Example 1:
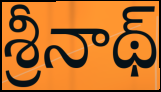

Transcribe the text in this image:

శ్రీనాథ్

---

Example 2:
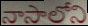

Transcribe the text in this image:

నాసాలోని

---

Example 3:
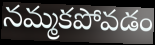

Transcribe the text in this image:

నమ్మకపోవడం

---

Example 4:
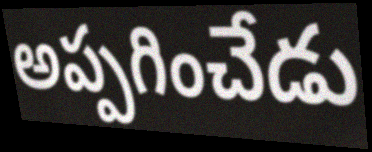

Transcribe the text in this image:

అప్పగించేడు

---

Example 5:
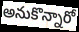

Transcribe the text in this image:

అనుకొన్నారో